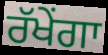
ਰੱਖੇਂਗਾ